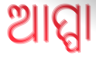
ଆପ୍ପା